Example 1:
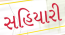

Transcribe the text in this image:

સહિયારી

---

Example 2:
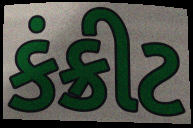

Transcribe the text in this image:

કંક્રીટ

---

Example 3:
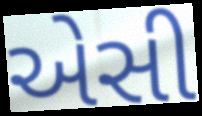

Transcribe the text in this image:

એસી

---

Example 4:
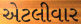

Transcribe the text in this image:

એટલીવાર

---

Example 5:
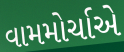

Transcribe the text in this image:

વામમોર્ચાએ